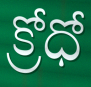
క్రోధో